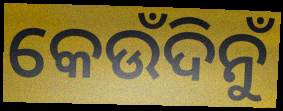
କେଉଁଦିନୁଁ